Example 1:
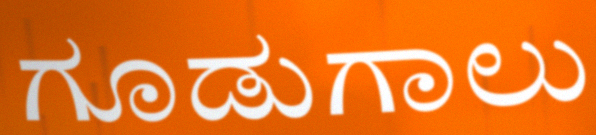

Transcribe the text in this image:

ಗೂಡುಗಾಲು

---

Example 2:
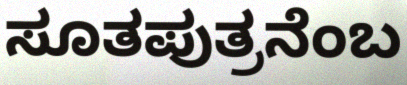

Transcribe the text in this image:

ಸೂತಪುತ್ರನೆಂಬ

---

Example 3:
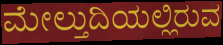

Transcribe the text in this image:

ಮೇಲ್ತುದಿಯಲ್ಲಿರುವ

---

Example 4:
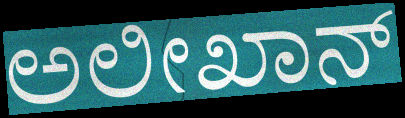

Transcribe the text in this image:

ಅಲೀಖಾನ್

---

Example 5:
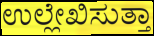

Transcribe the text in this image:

ಉಲ್ಲೇಖಿಸುತ್ತಾ